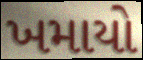
ખમાયો